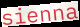
sienna